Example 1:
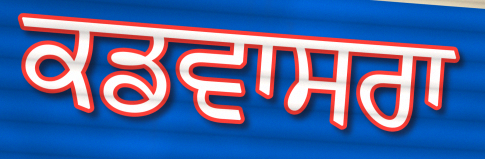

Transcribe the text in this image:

ਕਡਵਾਸਰਾ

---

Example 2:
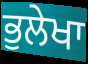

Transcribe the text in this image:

ਭੁਲੇਖਾ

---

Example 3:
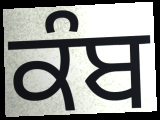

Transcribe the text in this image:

ਕੰਬ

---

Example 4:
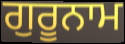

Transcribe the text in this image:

ਗੁਰੂਨਾਮ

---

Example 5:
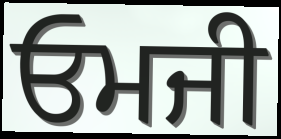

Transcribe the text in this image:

ਓਮਜੀ